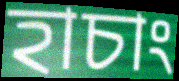
হাচাং